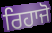
ਰਿਹਾਜੋ